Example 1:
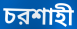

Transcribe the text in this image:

চরশাহী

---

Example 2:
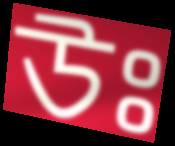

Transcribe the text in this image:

উঃ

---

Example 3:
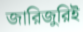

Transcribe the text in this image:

জারিজুরিই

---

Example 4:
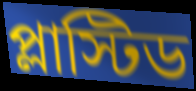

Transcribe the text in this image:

প্লাস্টিড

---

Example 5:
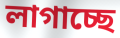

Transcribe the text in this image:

লাগাচ্ছে